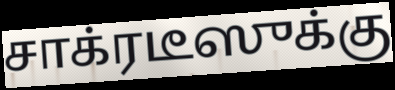
சாக்ரடீஸுக்கு